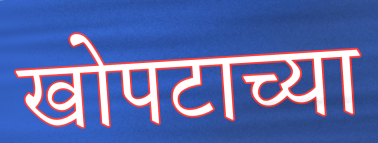
खोपटाच्या